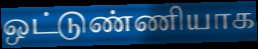
ஒட்டுண்ணியாக